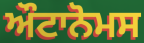
ਔਟਾਨੋਮਸ